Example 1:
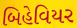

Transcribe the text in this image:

બિહેવિયર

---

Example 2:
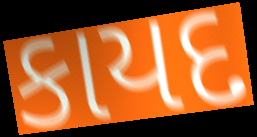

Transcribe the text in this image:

કાયદ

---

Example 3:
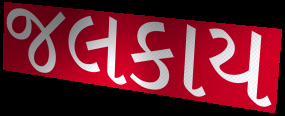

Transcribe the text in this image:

જલકાય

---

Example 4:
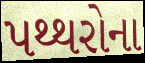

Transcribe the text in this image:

પથ્થરોના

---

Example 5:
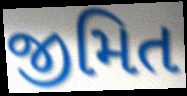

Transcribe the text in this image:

જીમિત